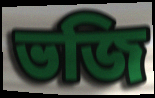
ভজি